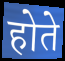
होते